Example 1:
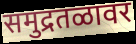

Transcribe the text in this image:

समुद्रतळावर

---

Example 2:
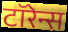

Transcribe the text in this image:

टॉरेन्स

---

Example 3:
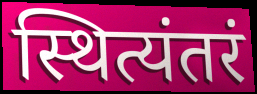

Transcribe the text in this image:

स्थित्यंतरं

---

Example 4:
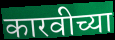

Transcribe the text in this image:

कारवीच्या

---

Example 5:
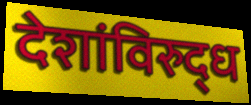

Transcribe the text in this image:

देशांविरुद्ध